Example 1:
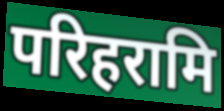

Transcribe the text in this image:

परिहरामि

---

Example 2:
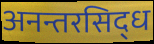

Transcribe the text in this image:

अनन्तरसिद्ध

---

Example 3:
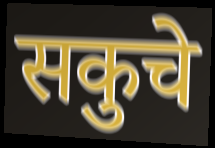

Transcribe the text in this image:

सकुचे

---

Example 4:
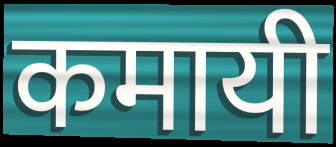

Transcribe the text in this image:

कमायी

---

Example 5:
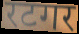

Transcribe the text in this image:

रटगर